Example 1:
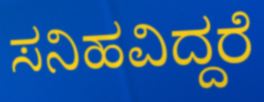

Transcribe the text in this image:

ಸನಿಹವಿದ್ದರೆ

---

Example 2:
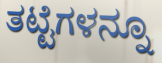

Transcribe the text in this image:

ತಟ್ಟೆಗಳನ್ನೂ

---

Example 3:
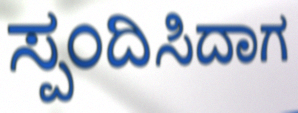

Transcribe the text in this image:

ಸ್ಪಂದಿಸಿದಾಗ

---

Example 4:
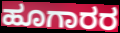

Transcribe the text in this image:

ಹೂಗಾರರ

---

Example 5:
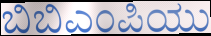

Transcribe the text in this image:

ಬಿಬಿಎಂಪಿಯು